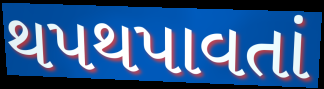
થપથપાવતાં